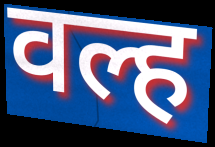
वल्ह